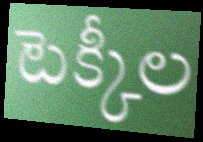
టెక్కీల